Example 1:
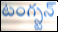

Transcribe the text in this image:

టంగ్స్టన్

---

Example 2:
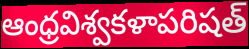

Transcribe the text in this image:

ఆంధ్రవిశ్వకళాపరిషత్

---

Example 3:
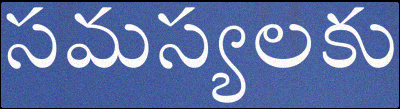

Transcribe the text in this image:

సమస్యలకు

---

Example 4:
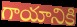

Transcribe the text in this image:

గాయానికి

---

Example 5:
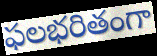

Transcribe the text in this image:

ఫలభరితంగా